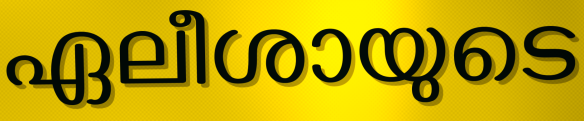
ഏലീശായുടെ